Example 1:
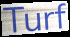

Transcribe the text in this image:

Turf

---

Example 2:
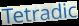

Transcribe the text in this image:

Tetradic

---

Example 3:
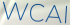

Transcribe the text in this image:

WCAI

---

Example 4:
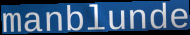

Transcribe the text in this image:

manblunde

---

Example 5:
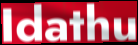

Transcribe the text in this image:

Idathu